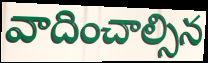
వాదించాల్సిన